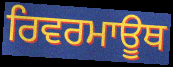
ਰਿਵਰਮਾਊਥ